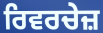
ਰਿਵਰਚੇਜ਼